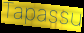
Tapassu